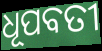
ଧୂପବତୀ